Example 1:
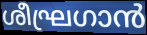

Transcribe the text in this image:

ശീഘ്രഗാൻ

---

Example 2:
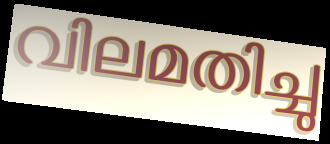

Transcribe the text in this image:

വിലമതിച്ചു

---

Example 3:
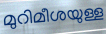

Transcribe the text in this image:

മുറിമീശയുള്ള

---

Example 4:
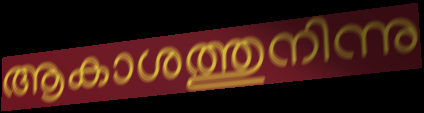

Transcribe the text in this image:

ആകാശത്തുനിന്നു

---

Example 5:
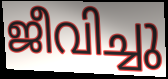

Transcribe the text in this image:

ജീവിച്ചു